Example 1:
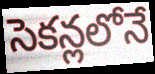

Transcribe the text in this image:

సెకన్లలోనే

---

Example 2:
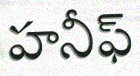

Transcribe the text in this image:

హనీఫ్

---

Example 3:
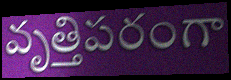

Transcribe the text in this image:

వృత్తిపరంగా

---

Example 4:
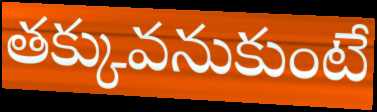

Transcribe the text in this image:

తక్కువనుకుంటే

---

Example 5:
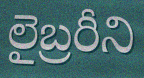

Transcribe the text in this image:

లైబ్రరీని